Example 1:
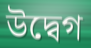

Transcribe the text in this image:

উদ্বেগ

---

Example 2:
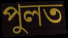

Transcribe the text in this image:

পুলত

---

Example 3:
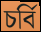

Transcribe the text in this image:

চৰ্বি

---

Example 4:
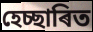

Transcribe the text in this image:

হেচ্ছাৰিত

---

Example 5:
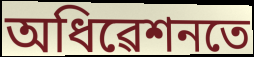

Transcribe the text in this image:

অধিৱেশনতে